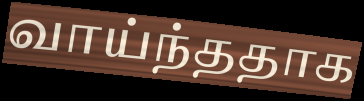
வாய்ந்ததாக